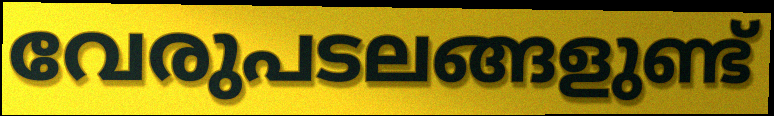
വേരുപടലങ്ങളുണ്ട്